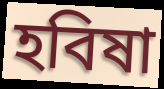
হবিষা